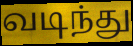
வடிந்து